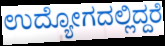
ಉದ್ಯೋಗದಲ್ಲಿದ್ದರೆ